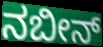
ನಬೀನ್